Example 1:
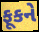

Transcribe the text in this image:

ફૂકને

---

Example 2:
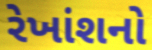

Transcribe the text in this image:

રેખાંશનો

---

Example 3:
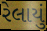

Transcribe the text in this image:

રેલાયું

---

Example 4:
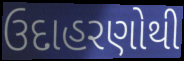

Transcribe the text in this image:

ઉદાહરણોથી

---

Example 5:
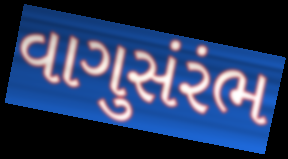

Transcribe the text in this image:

વાગુસંરંભ